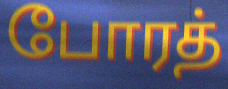
போரத்